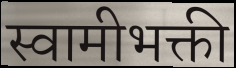
स्वामीभक्ती